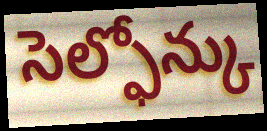
సెల్ఫోన్కు